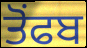
ਤੋਂਫਬ